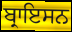
ਬ੍ਰਾਇਸਨ